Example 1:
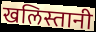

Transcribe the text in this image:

खलिस्तानी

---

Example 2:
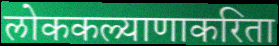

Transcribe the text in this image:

लोककल्याणाकरिता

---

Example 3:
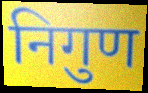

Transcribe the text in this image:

निगुण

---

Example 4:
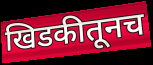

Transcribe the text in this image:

खिडकीतूनच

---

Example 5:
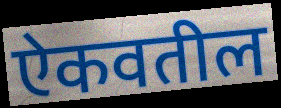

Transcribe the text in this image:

ऐकवतील